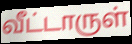
வீட்டாருள்